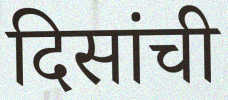
दिसांची